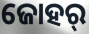
ଜୋହର୍